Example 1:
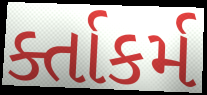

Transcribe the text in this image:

ર્ક્તાકર્મ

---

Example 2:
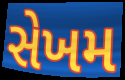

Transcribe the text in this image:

સેખમ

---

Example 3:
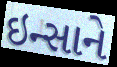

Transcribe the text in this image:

ઇન્સાને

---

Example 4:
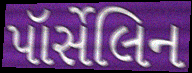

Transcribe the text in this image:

પૉર્સેલિન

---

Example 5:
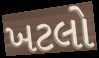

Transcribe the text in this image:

ખટલો